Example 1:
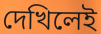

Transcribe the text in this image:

দেখিলেই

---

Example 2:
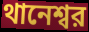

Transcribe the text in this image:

থানেশ্বর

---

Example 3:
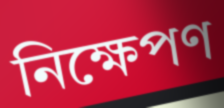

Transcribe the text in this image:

নিক্ষেপণ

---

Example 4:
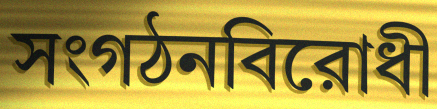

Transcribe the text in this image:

সংগঠনবিরোধী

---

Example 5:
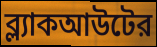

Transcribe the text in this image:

ব্ল্যাকআউটের